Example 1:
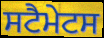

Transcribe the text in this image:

ਸਟੈਮੇਟਸ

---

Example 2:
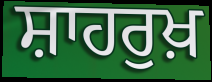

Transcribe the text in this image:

ਸ਼ਾਹਰੁਖ਼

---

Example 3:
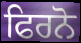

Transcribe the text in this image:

ਫਿਰਨੋ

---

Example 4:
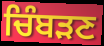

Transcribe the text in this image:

ਚਿੰਬੜਣ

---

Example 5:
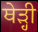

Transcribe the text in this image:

ਥੇੜ੍ਹੀ